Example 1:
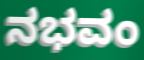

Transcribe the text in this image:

ನಭವಂ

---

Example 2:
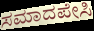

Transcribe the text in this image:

ಸಮಾದಪೇಸಿ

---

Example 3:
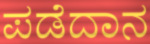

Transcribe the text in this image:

ಪಡೆದಾನ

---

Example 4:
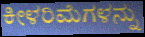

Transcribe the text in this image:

ಕೀಳರಿಮೆಗಳನ್ನು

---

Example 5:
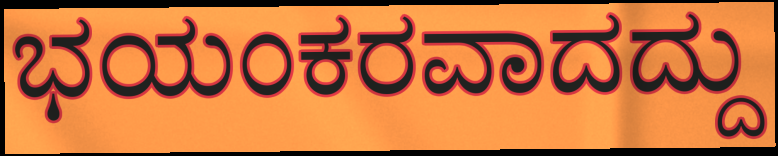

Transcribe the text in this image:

ಭಯಂಕರವಾದದ್ದು